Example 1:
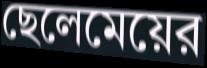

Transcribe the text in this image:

ছেলেমেয়ের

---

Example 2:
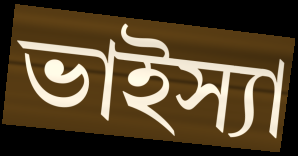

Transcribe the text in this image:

ভাইস্যা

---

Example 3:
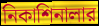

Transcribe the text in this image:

নিকাশিনালার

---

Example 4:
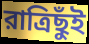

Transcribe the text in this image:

রাত্রিছুঁই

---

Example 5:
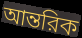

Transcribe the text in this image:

আন্তরিক